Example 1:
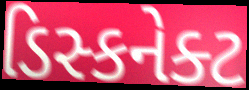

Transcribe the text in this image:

ડિસ્કનેક્ટ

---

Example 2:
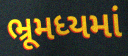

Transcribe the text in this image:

ભ્રૂમધ્યમાં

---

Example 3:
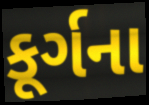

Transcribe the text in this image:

કૂર્ગના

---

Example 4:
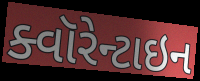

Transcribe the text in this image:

ક્વૉરેન્ટાઇન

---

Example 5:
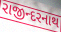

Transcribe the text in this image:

રાજીન્દરનાથ